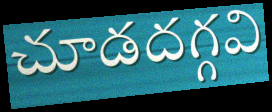
చూడదగ్గవి